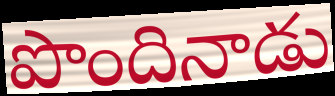
పొందినాడు